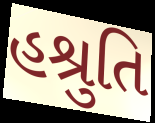
હશ્રુતિ